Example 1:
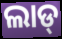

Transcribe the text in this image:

ଲାଡ୍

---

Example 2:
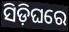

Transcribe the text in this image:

ସିଡ଼ିଘରେ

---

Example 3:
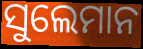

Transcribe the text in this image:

ସୁଲେମାନ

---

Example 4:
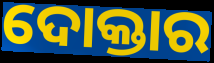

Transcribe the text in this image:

ଦୋକ୍ତାର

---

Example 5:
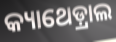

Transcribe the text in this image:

କ୍ୟାଥେଡ଼୍ରାଲ